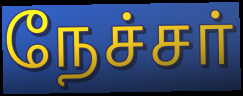
நேச்சர்